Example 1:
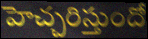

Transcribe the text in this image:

హెచ్చరిస్తుందో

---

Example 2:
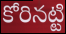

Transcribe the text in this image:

కోరినట్టి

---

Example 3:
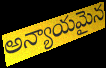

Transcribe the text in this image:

అన్యాయమైన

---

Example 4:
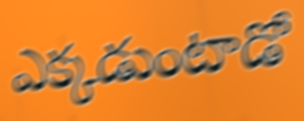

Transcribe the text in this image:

ఎక్కడుంటాడో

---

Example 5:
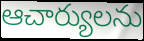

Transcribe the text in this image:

ఆచార్యులను